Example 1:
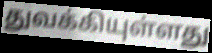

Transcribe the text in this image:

துவக்கியுள்ளது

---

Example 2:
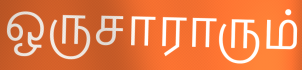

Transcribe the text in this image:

ஒருசாராரும்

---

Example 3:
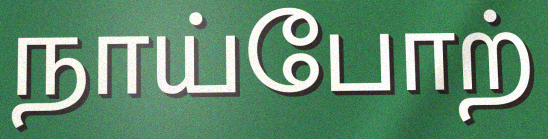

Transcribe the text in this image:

நாய்போற்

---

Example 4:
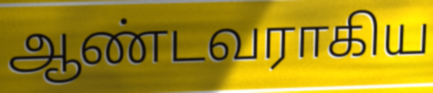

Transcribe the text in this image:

ஆண்டவராகிய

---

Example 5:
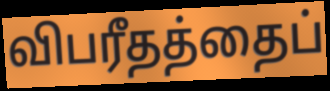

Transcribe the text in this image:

விபரீதத்தைப்